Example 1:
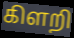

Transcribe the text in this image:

கிளறி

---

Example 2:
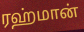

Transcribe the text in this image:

ரஹ்மான்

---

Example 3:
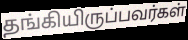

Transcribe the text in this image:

தங்கியிருப்பவர்கள்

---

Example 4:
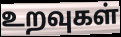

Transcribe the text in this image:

உறவுகள்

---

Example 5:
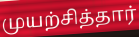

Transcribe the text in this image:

முயற்சித்தார்